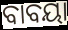
ବାବୟା